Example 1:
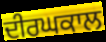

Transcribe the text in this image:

ਦੀਰਘਕਾਲ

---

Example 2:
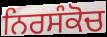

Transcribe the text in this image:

ਨਿਰਸੰਕੋਚ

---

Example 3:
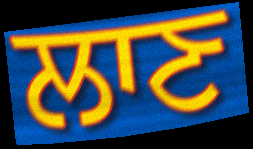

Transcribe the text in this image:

ਲਾਣ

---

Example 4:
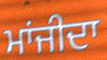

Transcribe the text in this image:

ਮਾਂਜੀਦਾ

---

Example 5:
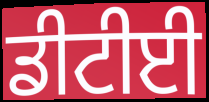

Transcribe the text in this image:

ਡੀਟੀਈ